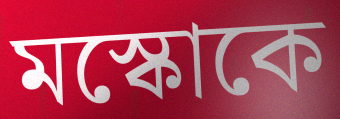
মস্কোকে